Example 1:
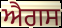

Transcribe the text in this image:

ਐਗਸ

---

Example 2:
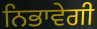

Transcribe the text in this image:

ਨਿਭਾਵੇਗੀ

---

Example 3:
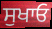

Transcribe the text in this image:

ਸੁਖਾਓ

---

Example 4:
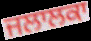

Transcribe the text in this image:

ਜਲਾਲਕਾ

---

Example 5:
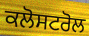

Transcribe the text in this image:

ਕਲੋਸਟਰੋਲ